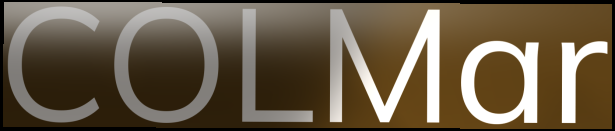
COLMar